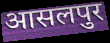
आसलपुर